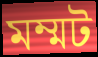
মম্মট